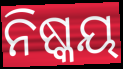
ନିଷ୍କୟ